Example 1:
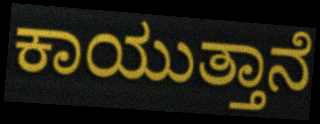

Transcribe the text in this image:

ಕಾಯುತ್ತಾನೆ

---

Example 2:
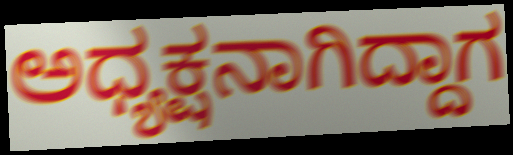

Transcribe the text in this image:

ಅಧ್ಯಕ್ಷನಾಗಿದ್ದಾಗ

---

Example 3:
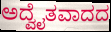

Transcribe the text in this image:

ಅದ್ವೈತವಾದದ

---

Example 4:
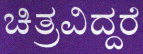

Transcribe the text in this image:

ಚಿತ್ರವಿದ್ದರೆ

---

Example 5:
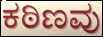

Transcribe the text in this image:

ಕಠಿಣವು